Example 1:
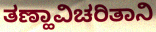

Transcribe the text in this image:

ತಣ್ಹಾವಿಚರಿತಾನಿ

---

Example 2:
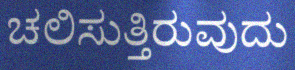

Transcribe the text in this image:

ಚಲಿಸುತ್ತಿರುವುದು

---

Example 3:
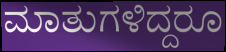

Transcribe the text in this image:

ಮಾತುಗಳಿದ್ದರೂ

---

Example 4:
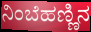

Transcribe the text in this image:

ನಿಂಬೆಹಣ್ಣಿನ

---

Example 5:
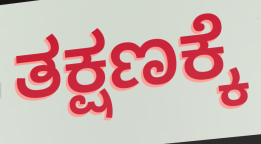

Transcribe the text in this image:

ತಕ್ಷಣಕ್ಕೆ